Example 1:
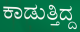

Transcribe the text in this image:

ಕಾಡುತ್ತಿದ್ದ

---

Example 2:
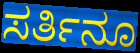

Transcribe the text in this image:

ಸರ್ತಿನೂ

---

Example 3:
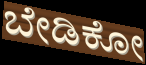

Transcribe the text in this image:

ಬೇಡಿಕೋ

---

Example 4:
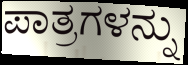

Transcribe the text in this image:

ಪಾತ್ರಗಳನ್ನು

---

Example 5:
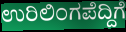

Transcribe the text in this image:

ಉರಿಲಿಂಗಪೆದ್ದಿಗೆ